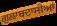
ਗੁਲਾਬਦਾਸੀਆਂ